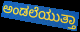
ಅಂಡಲೆಯುತ್ತಾ